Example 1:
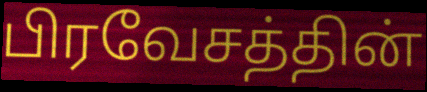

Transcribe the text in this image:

பிரவேசத்தின்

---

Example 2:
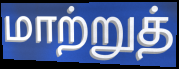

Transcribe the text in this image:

மாற்றுத்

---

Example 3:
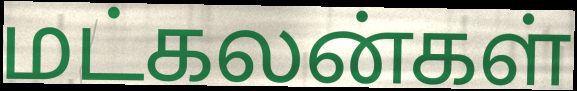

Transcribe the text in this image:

மட்கலன்கள்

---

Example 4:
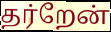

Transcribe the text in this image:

தர்றேன்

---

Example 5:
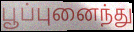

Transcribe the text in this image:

பூப்புனைந்து